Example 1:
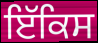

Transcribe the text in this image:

ਇੱਕਿਸ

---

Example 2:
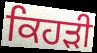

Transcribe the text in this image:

ਕਿਹੜੀ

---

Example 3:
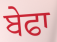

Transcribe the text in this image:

ਬੇਫਾ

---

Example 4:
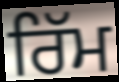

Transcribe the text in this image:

ਰਿੱਮ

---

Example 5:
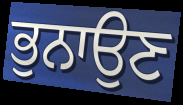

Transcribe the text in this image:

ਭੁਨਾਉਣ